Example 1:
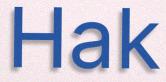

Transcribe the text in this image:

Hak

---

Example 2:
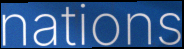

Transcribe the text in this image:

nations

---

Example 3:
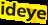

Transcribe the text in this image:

ideye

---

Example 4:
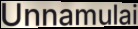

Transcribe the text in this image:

Unnamulai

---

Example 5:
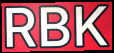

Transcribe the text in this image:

RBK